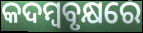
କଦମ୍ୱବୃକ୍ଷରେ